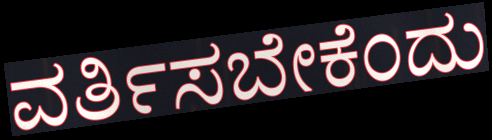
ವರ್ತಿಸಬೇಕೆಂದು